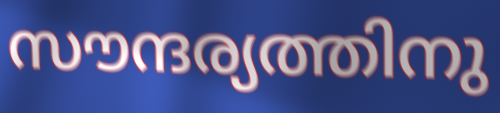
സൗന്ദര്യത്തിനു